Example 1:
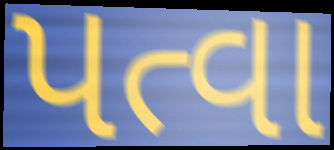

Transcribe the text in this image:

પત્વા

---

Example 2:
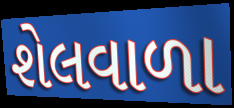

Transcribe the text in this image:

શેલવાળા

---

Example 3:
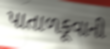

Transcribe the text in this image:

પાતાળકૂવાની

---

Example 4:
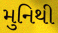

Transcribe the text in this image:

મુનિથી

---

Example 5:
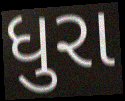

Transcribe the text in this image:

ધુરા